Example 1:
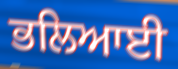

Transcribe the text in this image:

ਭਲਿਆਈ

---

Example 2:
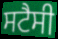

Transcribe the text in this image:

ਸਟੈਸੀ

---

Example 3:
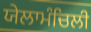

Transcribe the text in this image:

ਯੇਲਾਮੰਚਿਲੀ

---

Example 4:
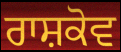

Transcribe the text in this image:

ਰਾਸ਼ਕੋਵ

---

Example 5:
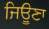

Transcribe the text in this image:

ਜਿਊਣਾ